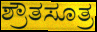
ಶ್ರೌತಸೂತ್ರ